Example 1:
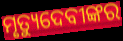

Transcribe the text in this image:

ମୃତ୍ୟୁଦେବୀଙ୍କର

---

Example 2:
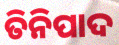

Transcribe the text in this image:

ତିନିପାଦ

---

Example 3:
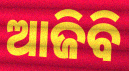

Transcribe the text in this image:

ଆଜିବି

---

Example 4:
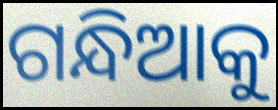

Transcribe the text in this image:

ଗନ୍ଧିଆକୁ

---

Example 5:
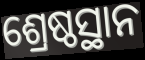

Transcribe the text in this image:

ଶ୍ରେଷ୍ଠସ୍ଥାନ